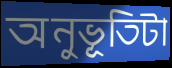
অনুভূতিটা